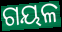
ଗୟଳ